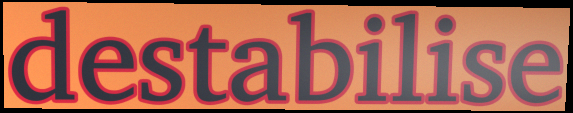
destabilise